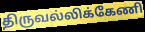
திருவல்லிக்கேணி